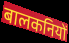
बालकनियों